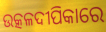
ଉତ୍କଳଦୀପିକାରେ